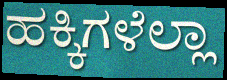
ಹಕ್ಕಿಗಳೆಲ್ಲಾ